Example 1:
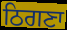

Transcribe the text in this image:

ਠਿਗਣਾ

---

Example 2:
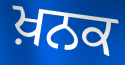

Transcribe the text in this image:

ਖ਼ਨਕ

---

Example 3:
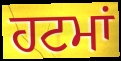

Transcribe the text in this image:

ਹਟਮਾਂ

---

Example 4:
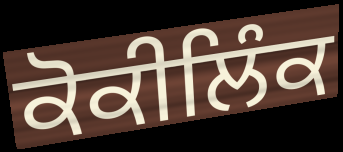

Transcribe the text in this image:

ਕੋਕੀਲਿੰਕ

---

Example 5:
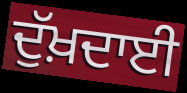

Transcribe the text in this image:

ਦੁੱਖ਼ਦਾਈ